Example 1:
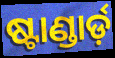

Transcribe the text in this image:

ଷ୍ଟାଣ୍ଡାର୍ଡ଼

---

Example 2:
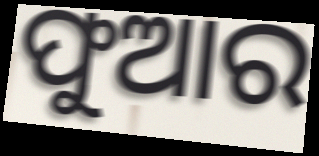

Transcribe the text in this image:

ଫୁଆର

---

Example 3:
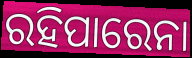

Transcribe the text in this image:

ରହିପାରେନା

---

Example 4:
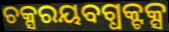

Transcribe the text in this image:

ଚକ୍ସରୟବଗ୍ଧକ୍ଟକ୍ସ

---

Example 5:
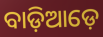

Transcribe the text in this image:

ବାଡ଼ିଆଡ଼େ